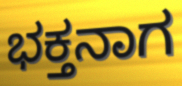
ಭಕ್ತನಾಗ